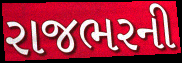
રાજભરની